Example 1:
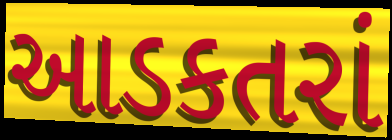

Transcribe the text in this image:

આડકતરાં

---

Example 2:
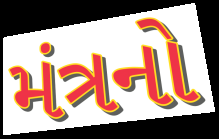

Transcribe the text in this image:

મંત્રનો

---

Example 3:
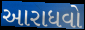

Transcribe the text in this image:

આરાધવો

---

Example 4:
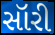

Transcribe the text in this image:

સૉરી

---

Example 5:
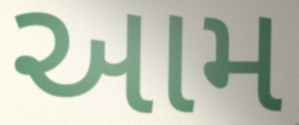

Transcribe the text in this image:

આમ